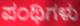
ಪಂಥಿಗಳು